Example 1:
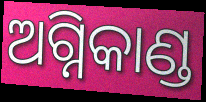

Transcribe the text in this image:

ଅଗ୍ନିକାଣ୍ଡ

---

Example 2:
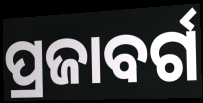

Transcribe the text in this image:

ପ୍ରଜାବର୍ଗ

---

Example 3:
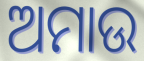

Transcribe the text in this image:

ଅମାଉ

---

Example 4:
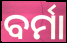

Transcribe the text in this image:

ବର୍ମା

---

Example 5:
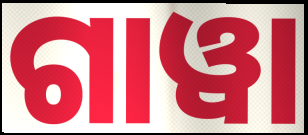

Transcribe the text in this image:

ଗାୱା